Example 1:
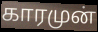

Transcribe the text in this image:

காரமுன்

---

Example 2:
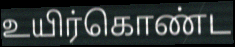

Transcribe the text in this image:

உயிர்கொண்ட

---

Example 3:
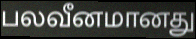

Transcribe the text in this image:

பலவீனமானது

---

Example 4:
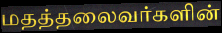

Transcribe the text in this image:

மதத்தலைவர்களின்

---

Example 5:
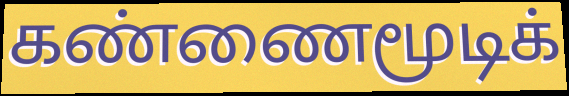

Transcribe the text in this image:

கண்ணைமூடிக்